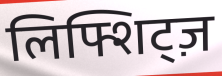
लिफ्शिट्ज़